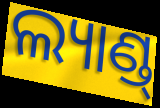
ଲ୍ୟାଣ୍ଡ୍